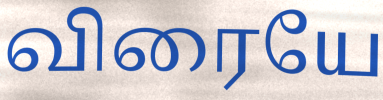
விரையே